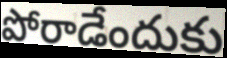
పోరాడేందుకు